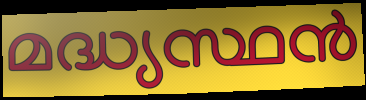
മദ്ധ്യസ്ഥൻ